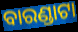
ବାରଣ୍ଡାଟା